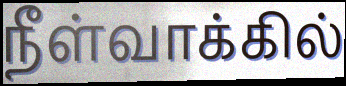
நீள்வாக்கில்